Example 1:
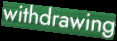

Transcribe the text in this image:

withdrawing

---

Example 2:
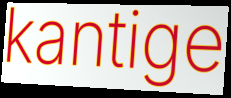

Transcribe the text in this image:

kantige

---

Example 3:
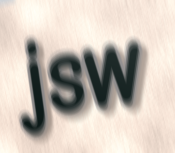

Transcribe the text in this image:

jsw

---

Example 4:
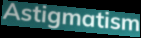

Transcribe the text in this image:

Astigmatism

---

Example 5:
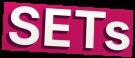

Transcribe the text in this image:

SETs